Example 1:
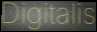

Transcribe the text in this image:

Digitalis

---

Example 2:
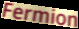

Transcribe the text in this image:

Fermion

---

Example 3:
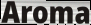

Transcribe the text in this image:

Aroma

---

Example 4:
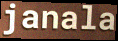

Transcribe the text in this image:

janala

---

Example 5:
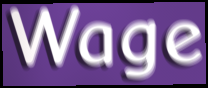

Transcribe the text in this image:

Wage